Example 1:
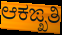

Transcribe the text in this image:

ಆಕಙ್ಖತಿ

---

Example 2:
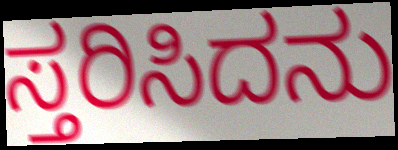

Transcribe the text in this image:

ಸ್ತರಿಸಿದನು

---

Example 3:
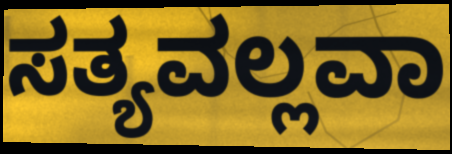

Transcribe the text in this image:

ಸತ್ಯವಲ್ಲವಾ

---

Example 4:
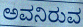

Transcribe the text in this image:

ಅವನಿರುವ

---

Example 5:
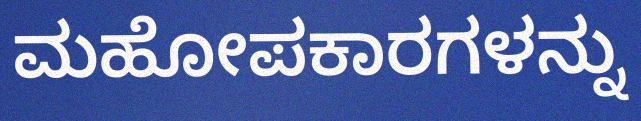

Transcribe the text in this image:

ಮಹೋಪಕಾರಗಳನ್ನು